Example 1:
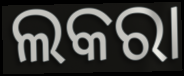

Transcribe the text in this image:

ଲକରା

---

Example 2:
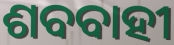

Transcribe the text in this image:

ଶବବାହୀ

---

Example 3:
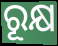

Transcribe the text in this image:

ରୂକ୍ଷ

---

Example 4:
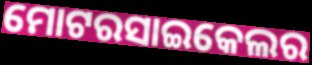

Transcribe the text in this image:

ମୋଟରସାଇକେଲର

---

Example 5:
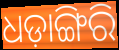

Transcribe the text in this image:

ଧଡ଼ାଙ୍ଗିରି